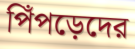
পিঁপড়েদের